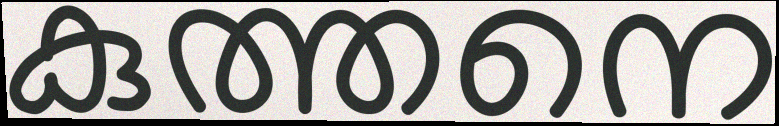
കുത്തനെ